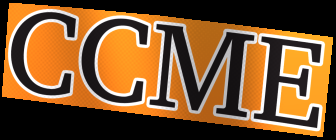
CCME